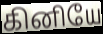
கினியே